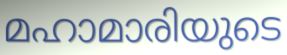
മഹാമാരിയുടെ